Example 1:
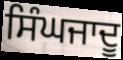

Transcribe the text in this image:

ਸਿੰਘਜਾਦੂ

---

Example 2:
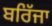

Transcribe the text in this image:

ਬਰਿੱਜਾ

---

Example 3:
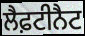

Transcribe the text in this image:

ਲੈਫ਼ਟੀਨੈਟ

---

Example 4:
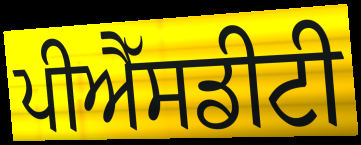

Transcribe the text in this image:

ਪੀਐੱਸਡੀਟੀ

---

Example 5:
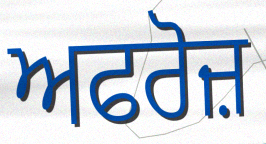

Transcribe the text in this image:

ਅਫਰੋਜ਼